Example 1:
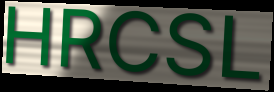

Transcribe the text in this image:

HRCSL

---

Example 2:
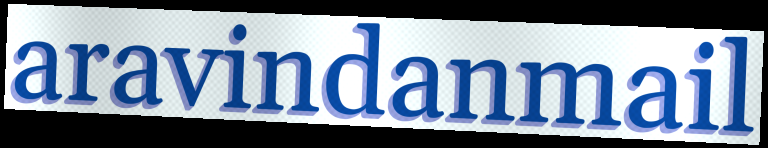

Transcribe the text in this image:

aravindanmail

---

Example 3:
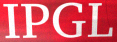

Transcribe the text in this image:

IPGL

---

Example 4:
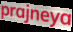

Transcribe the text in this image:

prajneya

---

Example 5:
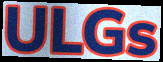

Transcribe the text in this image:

ULGs